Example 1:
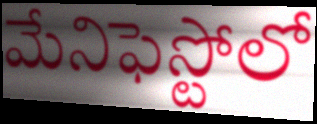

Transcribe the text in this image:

మేనిఫెస్టోలో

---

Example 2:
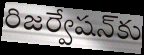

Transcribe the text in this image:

రిజర్వేషన్‌కు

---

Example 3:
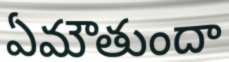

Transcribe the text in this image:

ఏమౌతుందా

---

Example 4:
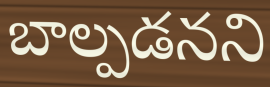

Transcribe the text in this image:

బాల్పడనని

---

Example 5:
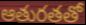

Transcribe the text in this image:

ఆతురతతో